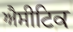
ਐਸੀਟਿਕ